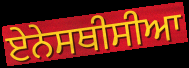
ਏਨੇਸਥੀਸੀਆ